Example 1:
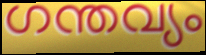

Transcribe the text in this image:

ഗന്തവ്യം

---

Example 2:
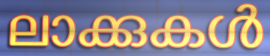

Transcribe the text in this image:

ലാക്കുകൾ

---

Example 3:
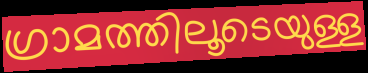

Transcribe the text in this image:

ഗ്രാമത്തിലൂടെയുള്ള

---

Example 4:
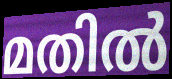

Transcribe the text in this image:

മതിൽ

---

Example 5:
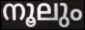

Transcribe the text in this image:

നൂലും